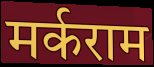
मर्कराम